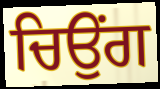
ਚਿਉਂਗ